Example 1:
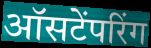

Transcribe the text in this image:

ऑसटेंपरिंग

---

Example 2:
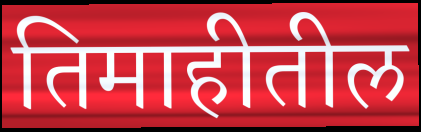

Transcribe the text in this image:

तिमाहीतील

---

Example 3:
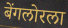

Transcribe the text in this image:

बेंगलोरला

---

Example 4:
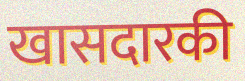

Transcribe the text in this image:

खासदारकी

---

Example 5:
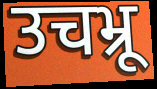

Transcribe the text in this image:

उचभ्रू